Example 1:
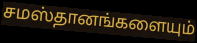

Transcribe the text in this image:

சமஸ்தானங்களையும்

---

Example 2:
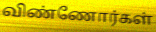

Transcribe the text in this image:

விண்ணோர்கள்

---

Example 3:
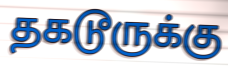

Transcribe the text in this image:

தகடூருக்கு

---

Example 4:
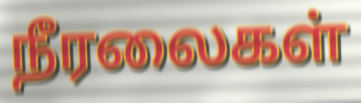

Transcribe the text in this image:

நீரலைகள்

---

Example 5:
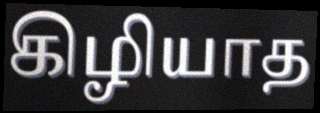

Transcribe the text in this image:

கிழியாத